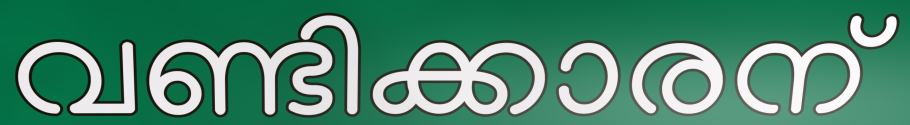
വണ്ടിക്കാരന്